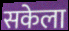
सकेला